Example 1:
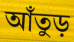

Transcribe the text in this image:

আঁতুড়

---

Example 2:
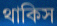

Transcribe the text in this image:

থাকিস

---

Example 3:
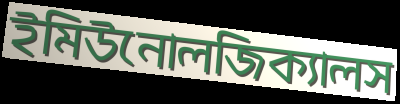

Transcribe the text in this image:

ইমিউনোলজিক্যালস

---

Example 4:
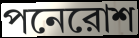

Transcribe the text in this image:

পনেরোশ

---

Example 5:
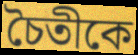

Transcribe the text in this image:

চৈতীকে